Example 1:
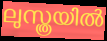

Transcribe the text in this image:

ലുസ്ത്രയിൽ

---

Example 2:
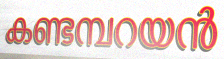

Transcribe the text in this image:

കണ്ടമ്പറയൻ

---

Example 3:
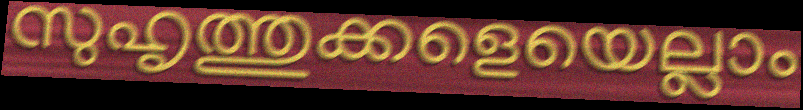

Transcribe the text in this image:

സുഹൃത്തുക്കളെയെല്ലാം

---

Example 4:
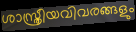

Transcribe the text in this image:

ശാസ്ത്രീയവിവരങ്ങളും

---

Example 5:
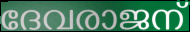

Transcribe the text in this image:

ദേവരാജന്